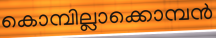
കൊമ്പില്ലാക്കൊമ്പൻ